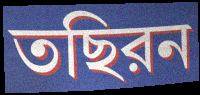
তছিরন